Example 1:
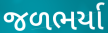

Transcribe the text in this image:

જળભર્યા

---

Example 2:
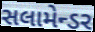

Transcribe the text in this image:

સલામેન્ડર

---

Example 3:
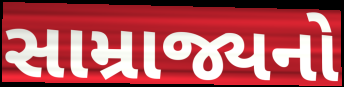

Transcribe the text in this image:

સામ્રાજ્યનો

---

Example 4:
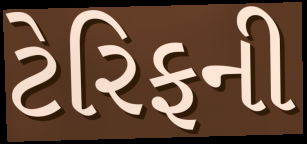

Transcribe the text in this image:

ટેરિફની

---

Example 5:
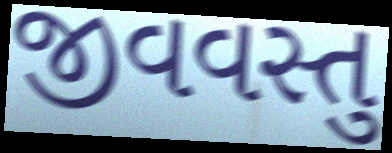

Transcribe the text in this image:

જીવવસ્તુ